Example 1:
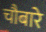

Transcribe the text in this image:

चौबारे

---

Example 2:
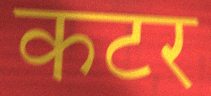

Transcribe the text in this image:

कटर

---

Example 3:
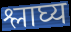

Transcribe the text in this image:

श्लाघ्य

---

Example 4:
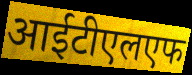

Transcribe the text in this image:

आईटीएलएफ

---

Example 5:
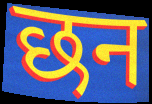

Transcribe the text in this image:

छन